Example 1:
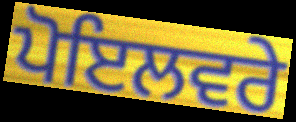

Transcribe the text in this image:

ਪੋਇਲਵਰੇ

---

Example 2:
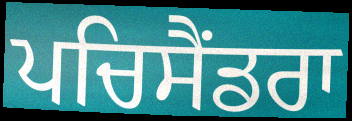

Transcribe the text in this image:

ਪਚਿਸੈਂਡਰਾ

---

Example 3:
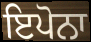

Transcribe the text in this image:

ਇਪੋਨਾ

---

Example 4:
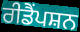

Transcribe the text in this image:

ਰੀਡੈਂਪਸ਼ਨ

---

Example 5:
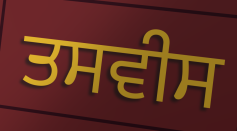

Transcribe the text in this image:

ਤਸਵੀਸ